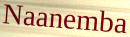
Naanemba